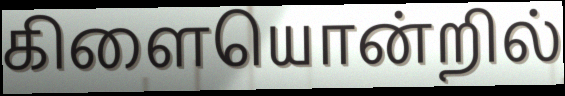
கிளையொன்றில்